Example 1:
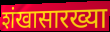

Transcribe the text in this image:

शंखासारख्या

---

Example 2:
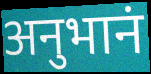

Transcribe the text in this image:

अनुभानं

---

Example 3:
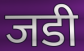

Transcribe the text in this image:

जडी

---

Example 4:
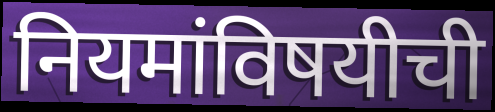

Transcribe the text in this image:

नियमांविषयीची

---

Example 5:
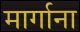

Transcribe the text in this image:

मार्गाना